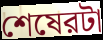
শেষেরটা